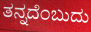
ತನ್ನದೆಂಬುದು